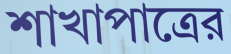
শাখাপাত্রের